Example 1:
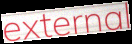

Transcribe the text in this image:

external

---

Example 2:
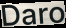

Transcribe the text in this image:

Daro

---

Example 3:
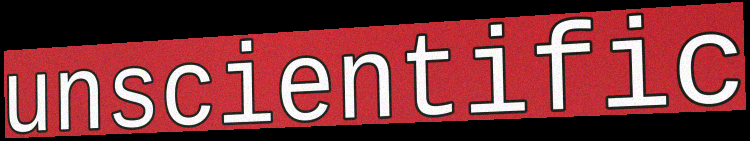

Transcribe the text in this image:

unscientific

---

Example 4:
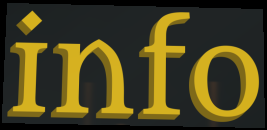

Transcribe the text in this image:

info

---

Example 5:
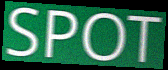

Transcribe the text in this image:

SPOT